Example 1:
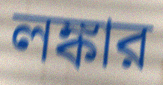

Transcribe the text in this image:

লঙ্কার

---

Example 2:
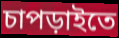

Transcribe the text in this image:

চাপড়াইতে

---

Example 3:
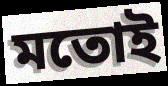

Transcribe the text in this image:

মতোই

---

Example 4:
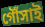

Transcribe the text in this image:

গৌঁসাই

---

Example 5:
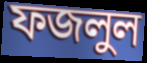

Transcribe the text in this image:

ফজলুল